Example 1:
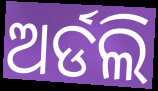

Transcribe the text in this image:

ଅର୍ଡଲି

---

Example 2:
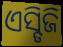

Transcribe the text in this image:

ଏସ୍ଡିଜି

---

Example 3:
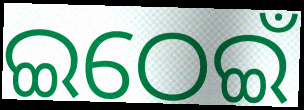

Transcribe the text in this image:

ଇଠେଇଁ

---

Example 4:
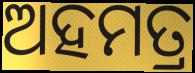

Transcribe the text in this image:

ଅହମତ୍ର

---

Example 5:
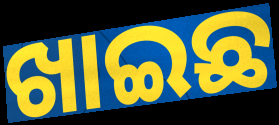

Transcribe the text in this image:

ଖାଇଛ